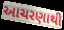
આચરણાથી